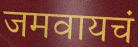
जमवायचं